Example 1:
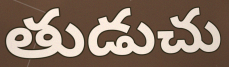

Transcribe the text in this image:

తుడుచు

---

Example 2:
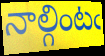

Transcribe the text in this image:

నాల్గింటఁ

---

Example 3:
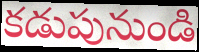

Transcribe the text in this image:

కడుపునుండి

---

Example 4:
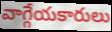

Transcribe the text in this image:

వాగ్గేయకారులు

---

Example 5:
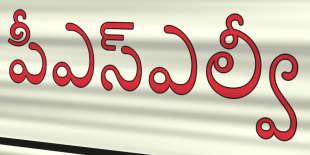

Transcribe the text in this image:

పీఎస్ఎల్వీ